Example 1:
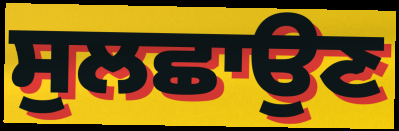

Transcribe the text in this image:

ਸੁਲਛਾਉਣ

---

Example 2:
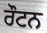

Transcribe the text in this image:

ਰੌਟਨ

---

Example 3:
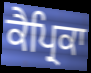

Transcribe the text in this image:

ਕੈਪ੍ਰਿਕਾ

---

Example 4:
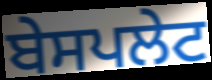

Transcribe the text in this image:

ਬੇਸਪਲੇਟ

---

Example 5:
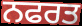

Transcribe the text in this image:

ਨਫਰਤ